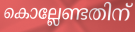
കൊല്ലേണ്ടതിന്